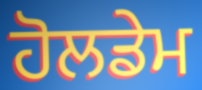
ਹੋਲਡੇਮ